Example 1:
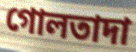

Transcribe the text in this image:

গোলতাদা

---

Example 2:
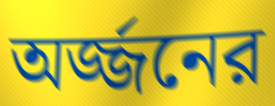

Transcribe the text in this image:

অর্জ্জনের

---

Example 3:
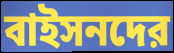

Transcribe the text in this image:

বাইসনদের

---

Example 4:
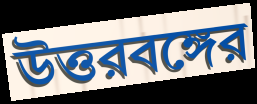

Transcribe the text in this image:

উত্তরবঙ্গের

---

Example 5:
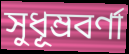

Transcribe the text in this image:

সুধূম্রবর্ণা